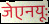
जेएनयूः